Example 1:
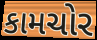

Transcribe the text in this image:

કામચોર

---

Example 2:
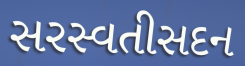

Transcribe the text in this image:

સરસ્વતીસદન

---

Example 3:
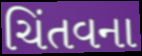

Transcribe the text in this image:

ચિંતવના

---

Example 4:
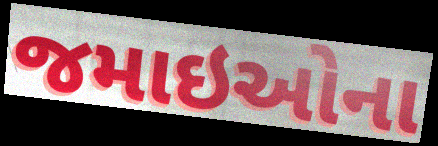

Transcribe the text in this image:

જમાઇઓના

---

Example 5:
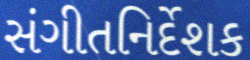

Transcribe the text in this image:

સંગીતનિર્દેશક